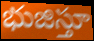
భుజిస్తూ